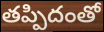
తప్పిదంతో